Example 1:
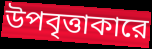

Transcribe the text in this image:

উপবৃত্তাকারে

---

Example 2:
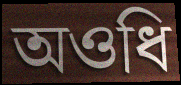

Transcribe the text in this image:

অওধি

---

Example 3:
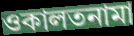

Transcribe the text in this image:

ওকালতনামা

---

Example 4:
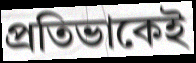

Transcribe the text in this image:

প্রতিভাকেই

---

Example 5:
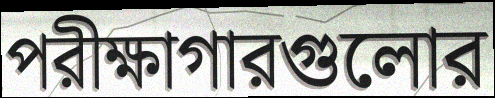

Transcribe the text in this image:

পরীক্ষাগারগুলোর